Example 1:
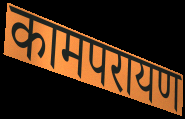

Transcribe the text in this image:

कामपरायण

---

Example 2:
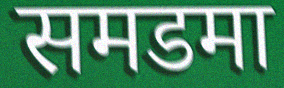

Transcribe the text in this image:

समडमा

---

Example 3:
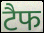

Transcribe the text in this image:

टैफ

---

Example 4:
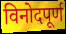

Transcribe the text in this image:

विनोदपूर्ण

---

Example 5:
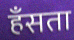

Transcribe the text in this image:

हॅंसता